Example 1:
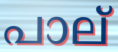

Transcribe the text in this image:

പാല്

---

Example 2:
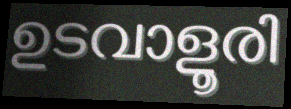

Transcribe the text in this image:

ഉടവാളൂരി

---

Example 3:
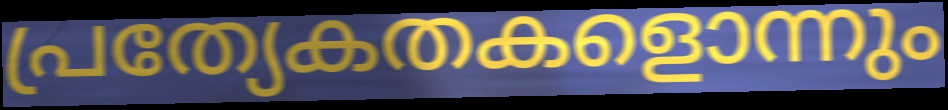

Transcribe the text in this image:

പ്രത്യേകതകളൊന്നും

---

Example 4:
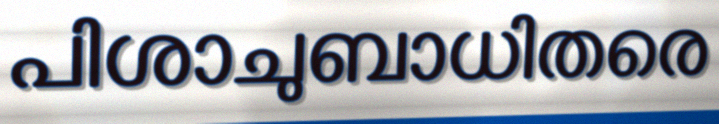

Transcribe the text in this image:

പിശാചുബാധിതരെ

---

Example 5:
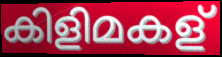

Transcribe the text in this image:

കിളിമകള്